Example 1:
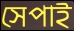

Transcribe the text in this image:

সেপাই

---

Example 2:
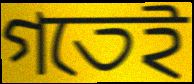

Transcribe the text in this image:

গতেই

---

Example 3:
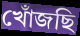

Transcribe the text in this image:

খোঁজছি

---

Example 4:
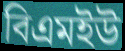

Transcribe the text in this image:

বিএমইউ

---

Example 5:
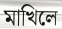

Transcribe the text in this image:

মাখিলে